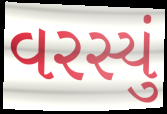
વરસ્યું